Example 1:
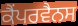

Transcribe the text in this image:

ਕੈਂਪਰਵੈਨਸ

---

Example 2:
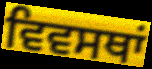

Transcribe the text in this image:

ਵਿਵਸਥਾਂ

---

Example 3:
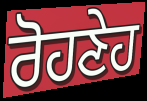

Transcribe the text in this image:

ਰੋਹਣੇਹ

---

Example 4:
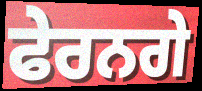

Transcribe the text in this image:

ਫੇਰਨਗੇ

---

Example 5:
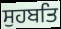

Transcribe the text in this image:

ਸੁਹਬਤਿ